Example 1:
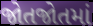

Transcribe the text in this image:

જોતજોતમાં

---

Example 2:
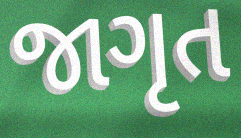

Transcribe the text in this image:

જાગૃત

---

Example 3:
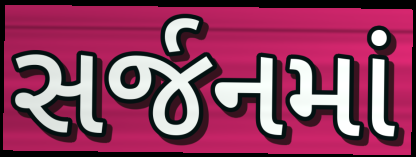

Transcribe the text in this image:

સર્જનમાં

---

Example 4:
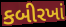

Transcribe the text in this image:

કબીરખાં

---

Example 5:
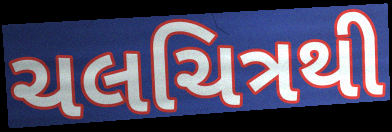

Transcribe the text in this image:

ચલચિત્રથી